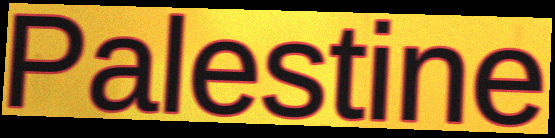
Palestine